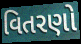
વિતરણો